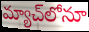
మ్యాచ్‌లోనూ